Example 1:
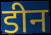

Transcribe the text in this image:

डीन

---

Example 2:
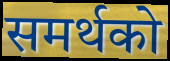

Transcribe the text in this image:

समर्थको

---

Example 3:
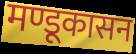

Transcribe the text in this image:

मण्डूकासन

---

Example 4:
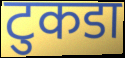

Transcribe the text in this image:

टुकडा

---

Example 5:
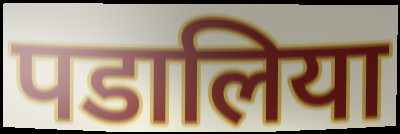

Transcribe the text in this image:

पडालिया